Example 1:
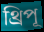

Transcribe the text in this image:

থ্রিপূ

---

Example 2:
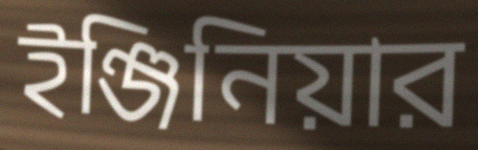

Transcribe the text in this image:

ইঞ্জিনিয়ার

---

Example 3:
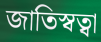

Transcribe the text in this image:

জাতিস্বত্বা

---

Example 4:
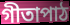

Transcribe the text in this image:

গীতাপাঠ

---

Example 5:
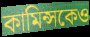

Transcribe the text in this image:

কামিন্সকেও